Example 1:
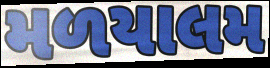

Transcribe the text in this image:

મળયાલમ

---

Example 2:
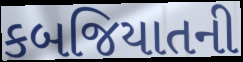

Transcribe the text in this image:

કબજિયાતની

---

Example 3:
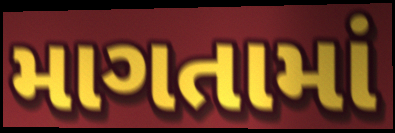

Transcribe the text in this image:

માગતામાં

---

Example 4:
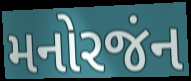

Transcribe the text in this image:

મનોરજંન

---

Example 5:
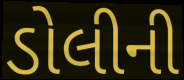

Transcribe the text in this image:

ડોલીની